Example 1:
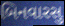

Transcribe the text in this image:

બિનવારસુ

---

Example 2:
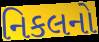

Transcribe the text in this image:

નિકલનો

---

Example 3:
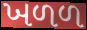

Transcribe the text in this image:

ખળળ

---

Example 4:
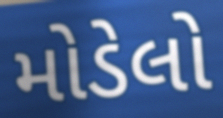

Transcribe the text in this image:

મોડેલો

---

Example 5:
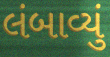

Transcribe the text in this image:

લંબાવ્યું